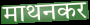
माथनकर